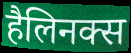
हैलिनक्स